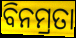
ବିନମ୍ରତା